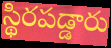
స్థిరపడ్డారు